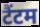
टैंटम